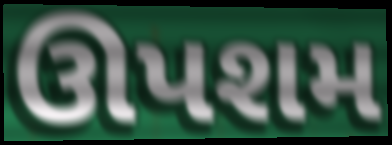
ઊપશમ